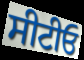
ਸੀਟੀਓ